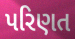
પરિણત